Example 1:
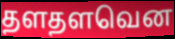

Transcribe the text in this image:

தளதளவென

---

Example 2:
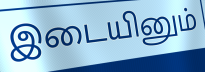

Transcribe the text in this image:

இடையினும்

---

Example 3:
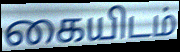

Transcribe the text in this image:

கையிடம்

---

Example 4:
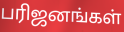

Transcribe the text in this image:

பரிஜனங்கள்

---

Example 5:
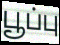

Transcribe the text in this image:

பூப்பு